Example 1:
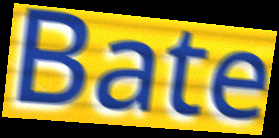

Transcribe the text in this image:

Bate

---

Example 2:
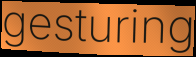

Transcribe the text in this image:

gesturing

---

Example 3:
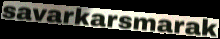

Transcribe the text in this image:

savarkarsmarak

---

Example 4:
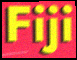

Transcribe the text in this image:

Fiji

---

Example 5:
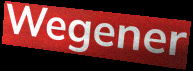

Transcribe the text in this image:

Wegener